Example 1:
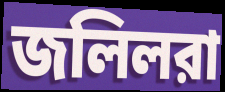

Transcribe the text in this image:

জলিলরা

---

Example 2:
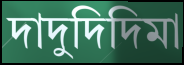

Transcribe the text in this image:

দাদুদিদিমা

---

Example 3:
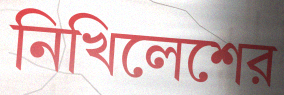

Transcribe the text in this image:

নিখিলেশের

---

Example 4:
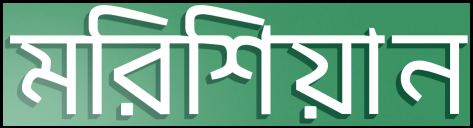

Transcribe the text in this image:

মরিশিয়ান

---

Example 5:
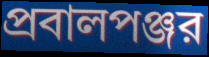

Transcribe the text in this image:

প্রবালপঞ্জর